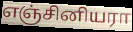
எஞ்சினியரா